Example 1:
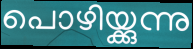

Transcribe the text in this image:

പൊഴിയ്ക്കുന്നു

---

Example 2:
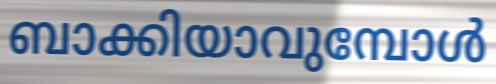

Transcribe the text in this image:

ബാക്കിയാവുമ്പോൾ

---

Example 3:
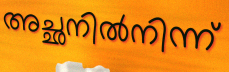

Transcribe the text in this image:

അച്ഛനിൽനിന്ന്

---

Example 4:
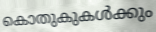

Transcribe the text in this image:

കൊതുകുകൾക്കും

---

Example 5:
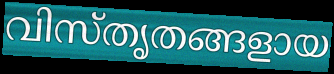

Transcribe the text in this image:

വിസ്തൃതങ്ങളായ